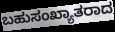
ಬಹುಸಂಖ್ಯಾತರಾದ